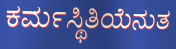
ಕರ್ಮಸ್ಥಿತಿಯೆನುತ